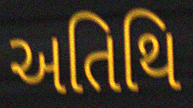
અતિથિ